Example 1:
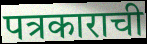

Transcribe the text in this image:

पत्रकाराची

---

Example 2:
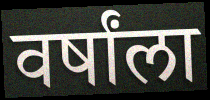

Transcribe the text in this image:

वर्षांला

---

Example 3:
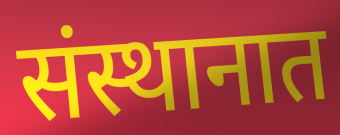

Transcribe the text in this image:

संस्थानात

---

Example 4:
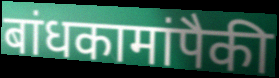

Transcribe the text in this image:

बांधकामांपैकी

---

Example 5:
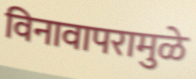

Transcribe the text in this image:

विनावापरामुळे